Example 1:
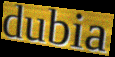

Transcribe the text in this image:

dubia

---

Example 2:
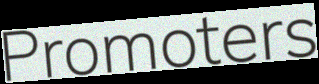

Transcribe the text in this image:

Promoters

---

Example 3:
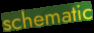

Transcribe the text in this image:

schematic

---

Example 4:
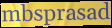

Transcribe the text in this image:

mbsprasad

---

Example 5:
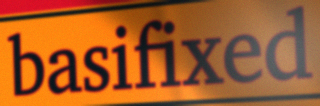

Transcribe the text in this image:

basifixed